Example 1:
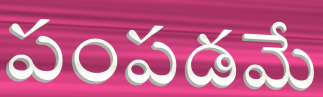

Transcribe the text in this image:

పంపడమే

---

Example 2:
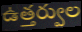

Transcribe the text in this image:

ఉత్తర్వుల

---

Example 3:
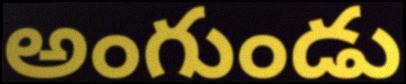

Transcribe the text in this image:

అంగుండు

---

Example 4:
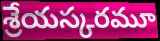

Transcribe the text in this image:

శ్రేయస్కరమూ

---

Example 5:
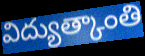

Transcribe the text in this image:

విద్యుత్కాంతి